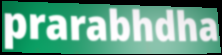
prarabhdha